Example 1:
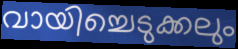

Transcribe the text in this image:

വായിച്ചെടുക്കലും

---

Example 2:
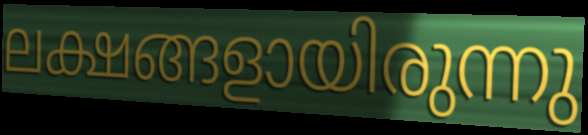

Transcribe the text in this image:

ലക്ഷങ്ങളായിരുന്നു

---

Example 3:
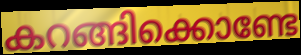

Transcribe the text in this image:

കറങ്ങിക്കൊണ്ടേ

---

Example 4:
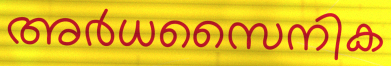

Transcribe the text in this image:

അർധസൈനിക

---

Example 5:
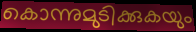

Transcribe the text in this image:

കൊന്നുമുടിക്കുകയും